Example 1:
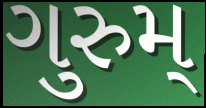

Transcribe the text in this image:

ગુરુમ્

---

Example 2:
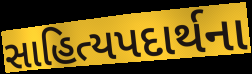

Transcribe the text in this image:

સાહિત્યપદાર્થના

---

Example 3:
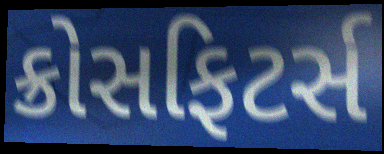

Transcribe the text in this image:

ક્રોસફિટર્સ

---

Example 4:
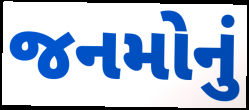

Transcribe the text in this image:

જનમોનું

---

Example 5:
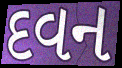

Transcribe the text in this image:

દવન